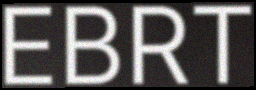
EBRT